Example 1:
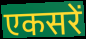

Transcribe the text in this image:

एकसरें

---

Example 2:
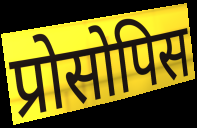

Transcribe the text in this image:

प्रोसोपिस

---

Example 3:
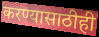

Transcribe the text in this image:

करण्यासाठीही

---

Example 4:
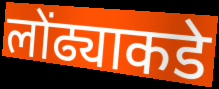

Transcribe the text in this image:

लोंढ्याकडे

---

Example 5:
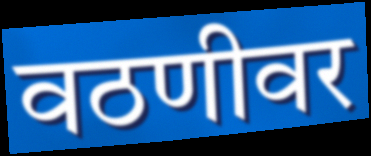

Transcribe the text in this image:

वठणीवर